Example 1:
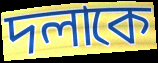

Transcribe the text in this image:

দলাকে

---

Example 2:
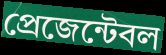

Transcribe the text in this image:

প্রেজেন্টেবল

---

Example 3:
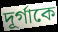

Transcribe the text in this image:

দূর্গাকে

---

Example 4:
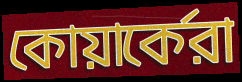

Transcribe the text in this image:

কোয়ার্কেরা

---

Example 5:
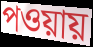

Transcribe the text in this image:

পওয়ায়